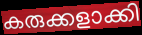
കരുക്കളാക്കി